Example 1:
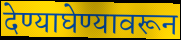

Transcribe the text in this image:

देण्याघेण्यावरून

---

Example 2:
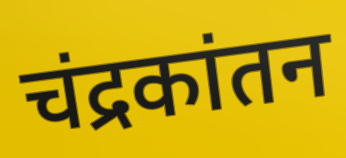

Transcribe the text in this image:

चंद्रकांतन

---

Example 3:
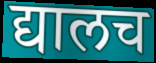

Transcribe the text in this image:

द्यालच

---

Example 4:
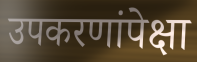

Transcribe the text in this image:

उपकरणांपेक्षा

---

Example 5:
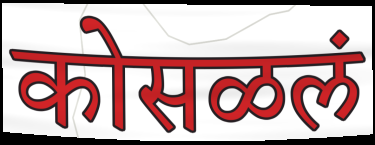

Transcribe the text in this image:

कोसळलं